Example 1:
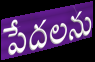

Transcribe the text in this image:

పేదలను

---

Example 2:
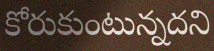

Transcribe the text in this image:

కోరుకుంటున్నదని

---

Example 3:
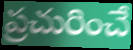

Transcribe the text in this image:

ప్రచురించే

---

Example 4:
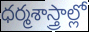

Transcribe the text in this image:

ధర్మశాస్త్రాల్లో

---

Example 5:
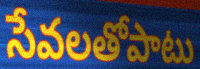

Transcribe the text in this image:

సేవలతోపాటు